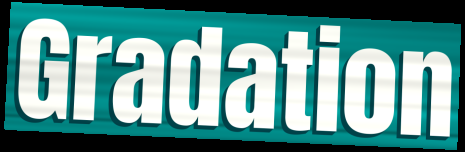
Gradation